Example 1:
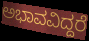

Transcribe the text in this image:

ಅಭಾವವಿದ್ದರೆ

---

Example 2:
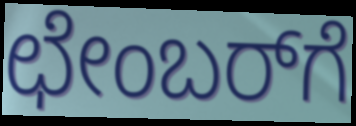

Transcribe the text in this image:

ಛೇಂಬರ್‌ಗೆ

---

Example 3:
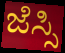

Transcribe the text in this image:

ಜೆಸ್ಸಿ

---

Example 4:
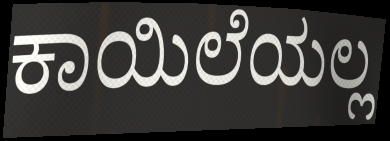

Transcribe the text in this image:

ಕಾಯಿಲೆಯಲ್ಲ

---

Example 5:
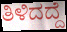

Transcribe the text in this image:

ತಿಳಿದದ್ದೆ